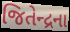
જિતેન્દ્રના